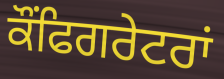
ਕੌਂਫਿਗਰੇਟਰਾਂ